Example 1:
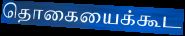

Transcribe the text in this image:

தொகையைக்கூட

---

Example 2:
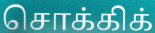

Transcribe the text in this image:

சொக்கிக்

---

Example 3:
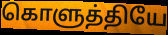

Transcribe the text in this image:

கொளுத்தியே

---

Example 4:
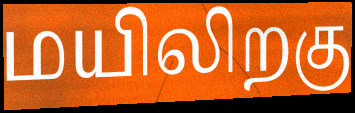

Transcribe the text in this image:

மயிலிறகு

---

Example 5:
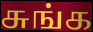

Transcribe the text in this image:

சுங்க